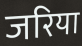
जरिया